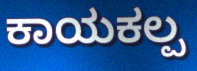
ಕಾಯಕಲ್ಪ